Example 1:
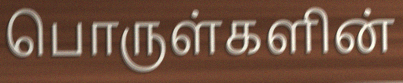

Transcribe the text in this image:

பொருள்களின்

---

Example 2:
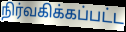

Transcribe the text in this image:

நிர்வகிக்கப்பட்ட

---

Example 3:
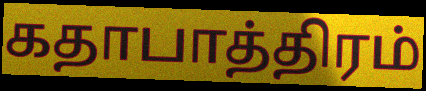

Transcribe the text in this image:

கதாபாத்திரம்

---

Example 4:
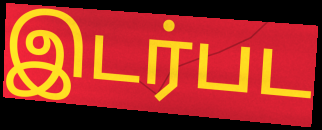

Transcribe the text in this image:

இடர்பட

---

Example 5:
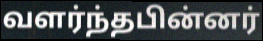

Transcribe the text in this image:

வளர்ந்தபின்னர்